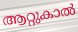
ആറ്റുകാൽ